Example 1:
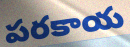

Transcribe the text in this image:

పరకాయ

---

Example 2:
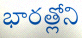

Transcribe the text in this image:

భారత్లోని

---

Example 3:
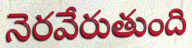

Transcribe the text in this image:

నెరవేరుతుంది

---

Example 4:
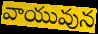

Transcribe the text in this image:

వాయువున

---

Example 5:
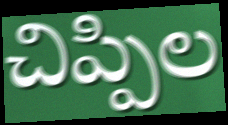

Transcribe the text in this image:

చిప్పిల